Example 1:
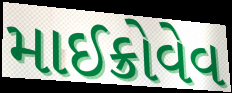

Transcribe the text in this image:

માઈક્રોવેવ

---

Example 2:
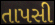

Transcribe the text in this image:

તાપસી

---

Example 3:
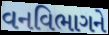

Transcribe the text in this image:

વનવિભાગને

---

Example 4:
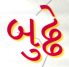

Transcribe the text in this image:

બુઢ્ઢે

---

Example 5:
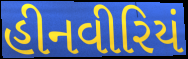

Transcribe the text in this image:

હીનવીરિયં